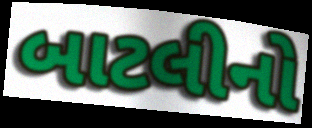
બાટલીનો